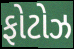
ફોટોઝ